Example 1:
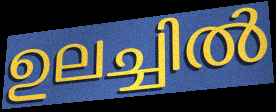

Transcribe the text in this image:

ഉലച്ചിൽ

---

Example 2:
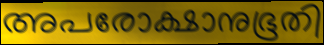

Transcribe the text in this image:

അപരോക്ഷാനുഭൂതി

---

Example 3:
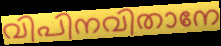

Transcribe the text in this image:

വിപിനവിതാനേ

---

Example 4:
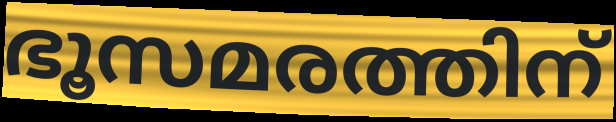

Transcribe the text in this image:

ഭൂസമരത്തിന്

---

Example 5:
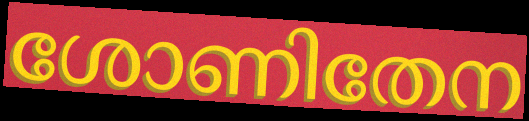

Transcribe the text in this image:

ശോണിതേന